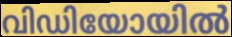
വിഡിയോയിൽ